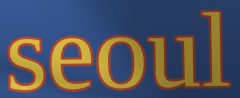
seoul